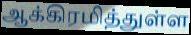
ஆக்கிரமித்துள்ள